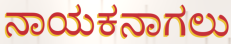
ನಾಯಕನಾಗಲು